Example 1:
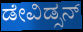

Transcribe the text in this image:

ಡೇವಿಡ್ಸನ್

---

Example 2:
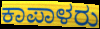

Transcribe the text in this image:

ಕಾಪಾಳರು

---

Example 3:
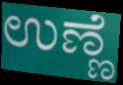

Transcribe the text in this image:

ಉಣ್ಣೆ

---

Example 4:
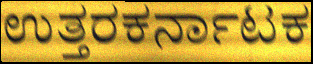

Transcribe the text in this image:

ಉತ್ತರಕರ್ನಾಟಕ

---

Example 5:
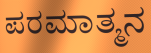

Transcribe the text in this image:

ಪರಮಾತ್ಮನ